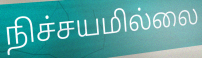
நிச்சயமில்லை